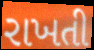
રાખતી